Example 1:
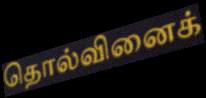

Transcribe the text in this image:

தொல்வினைக்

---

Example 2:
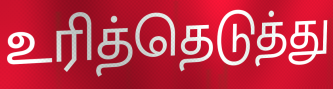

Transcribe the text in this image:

உரித்தெடுத்து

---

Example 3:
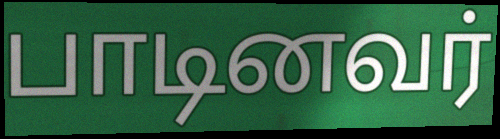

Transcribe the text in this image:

பாடினவர்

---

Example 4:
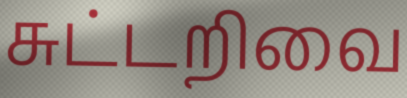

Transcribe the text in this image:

சுட்டறிவை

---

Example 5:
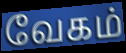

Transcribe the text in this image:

வேகம்